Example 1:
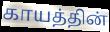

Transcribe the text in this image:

காயத்தின்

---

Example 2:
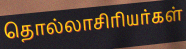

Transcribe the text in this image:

தொல்லாசிரியர்கள்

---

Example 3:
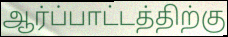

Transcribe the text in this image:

ஆர்ப்பாட்டத்திற்கு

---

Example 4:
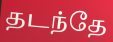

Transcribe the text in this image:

தடந்தே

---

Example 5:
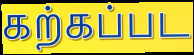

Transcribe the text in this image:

கற்கப்பட